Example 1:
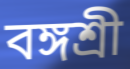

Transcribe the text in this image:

বঙ্গশ্রী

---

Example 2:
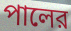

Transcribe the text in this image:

পালের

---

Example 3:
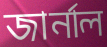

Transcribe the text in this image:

জার্নাল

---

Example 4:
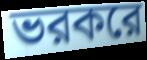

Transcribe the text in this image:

ভরকরে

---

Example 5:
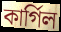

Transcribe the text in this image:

কার্গিল